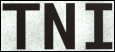
TNI